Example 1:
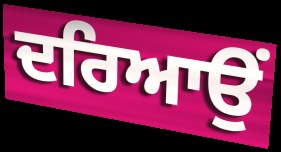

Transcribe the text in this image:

ਦਰਿਆਉਂ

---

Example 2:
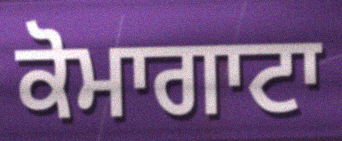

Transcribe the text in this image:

ਕੋਮਾਗਾਟਾ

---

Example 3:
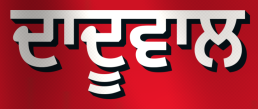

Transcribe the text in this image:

ਦਾਦੂਵਾਲ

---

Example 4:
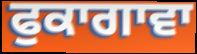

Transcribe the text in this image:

ਫੁਕਾਗਾਵਾ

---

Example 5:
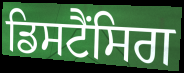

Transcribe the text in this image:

ਡਿਸਟੈਂਸਿਗ